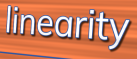
linearity